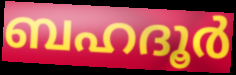
ബഹദൂർ